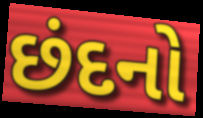
છંદનો